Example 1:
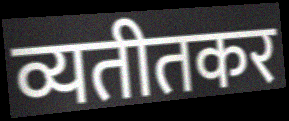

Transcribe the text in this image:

व्यतीतकर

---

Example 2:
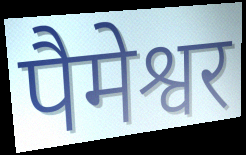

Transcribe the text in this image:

पैमेश्वर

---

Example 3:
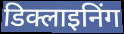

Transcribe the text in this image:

डिक्लाइनिंग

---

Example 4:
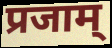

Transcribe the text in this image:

प्रजाम्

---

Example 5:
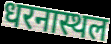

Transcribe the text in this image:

धरनास्थल